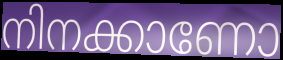
നിനക്കാണോ